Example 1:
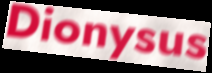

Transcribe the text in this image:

Dionysus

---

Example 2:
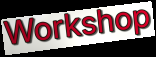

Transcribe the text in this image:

Workshop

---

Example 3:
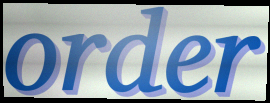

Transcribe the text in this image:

order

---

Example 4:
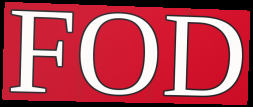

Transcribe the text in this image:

FOD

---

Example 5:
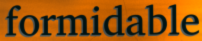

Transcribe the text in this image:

formidable